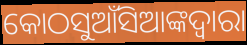
କୋଠସୁଆଁସିଆଙ୍କଦ୍ବାରା